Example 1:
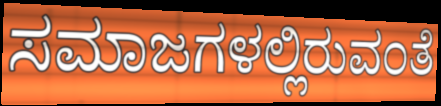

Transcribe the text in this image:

ಸಮಾಜಗಳಲ್ಲಿರುವಂತೆ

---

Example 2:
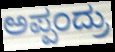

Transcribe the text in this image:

ಅಪ್ಪಂದ್ರು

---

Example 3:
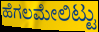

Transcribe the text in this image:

ಹೆಗಲಮೇಲಿಟ್ಟು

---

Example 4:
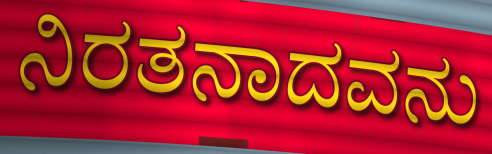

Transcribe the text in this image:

ನಿರತನಾದವನು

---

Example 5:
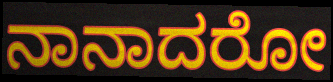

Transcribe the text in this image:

ನಾನಾದರೋ